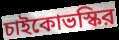
চাইকোভস্কির